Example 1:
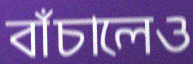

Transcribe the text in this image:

বাঁচালেও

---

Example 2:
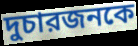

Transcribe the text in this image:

দুচারজনকে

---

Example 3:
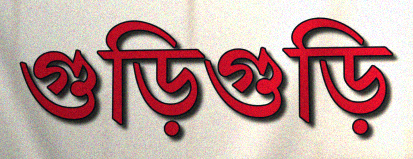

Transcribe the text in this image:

গুড়িগুড়ি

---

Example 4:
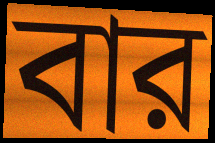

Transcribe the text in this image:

বার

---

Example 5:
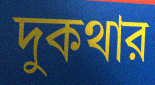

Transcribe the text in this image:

দুকথার